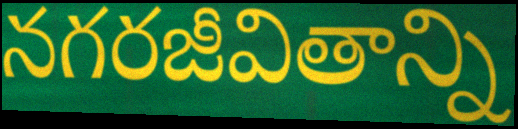
నగరజీవితాన్ని